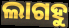
ଲାଗହୁ